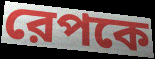
রেপকে